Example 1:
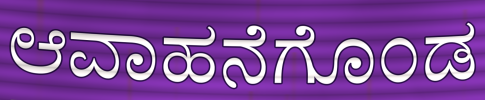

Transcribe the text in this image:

ಆವಾಹನೆಗೊಂಡ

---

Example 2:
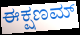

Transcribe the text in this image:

ಈಕ್ಷಣಮ್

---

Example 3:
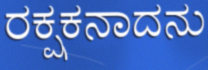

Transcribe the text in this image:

ರಕ್ಷಕನಾದನು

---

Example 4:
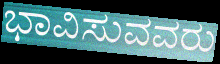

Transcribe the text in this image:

ಭಾವಿಸುವವರು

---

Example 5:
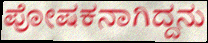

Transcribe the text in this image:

ಪೋಷಕನಾಗಿದ್ದನು